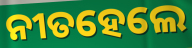
ନୀତହେଲେ